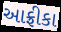
આફ્રીકા